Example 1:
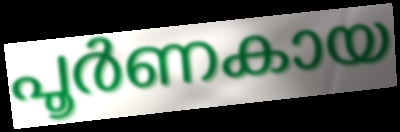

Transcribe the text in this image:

പൂർണകായ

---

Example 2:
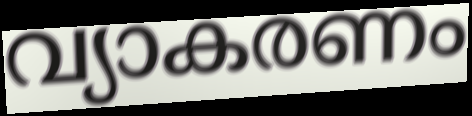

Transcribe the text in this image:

വ്യാകരണം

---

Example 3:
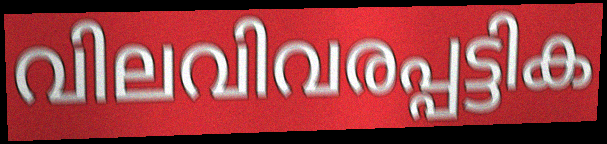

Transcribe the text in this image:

വിലവിവരപ്പട്ടിക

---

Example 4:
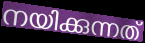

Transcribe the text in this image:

നയിക്കുന്നത്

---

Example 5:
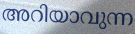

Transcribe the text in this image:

അറിയാവുന്ന